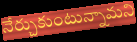
నేర్చుకుంటున్నామని